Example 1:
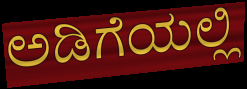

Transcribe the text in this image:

ಅಡಿಗೆಯಲ್ಲಿ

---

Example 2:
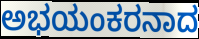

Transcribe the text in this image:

ಅಭಯಂಕರನಾದ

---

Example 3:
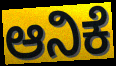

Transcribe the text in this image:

ಆನಿಕೆ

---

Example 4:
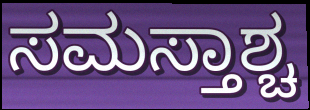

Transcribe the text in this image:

ಸಮಸ್ತಾಶ್ಚ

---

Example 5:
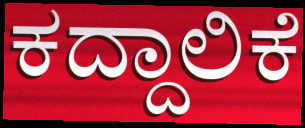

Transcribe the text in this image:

ಕದ್ದಾಲಿಕೆ